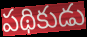
పథికుడు